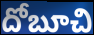
దోబూచి